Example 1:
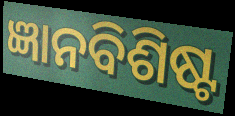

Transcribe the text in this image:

ଜ୍ଞାନବିଶିଷ୍ଟ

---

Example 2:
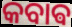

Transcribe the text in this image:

କବାଵ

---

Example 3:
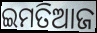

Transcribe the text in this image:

ଇମତିଆଜ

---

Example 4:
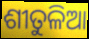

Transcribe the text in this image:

ଶୀତୁଳିଆ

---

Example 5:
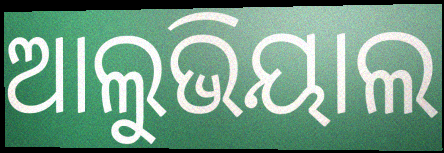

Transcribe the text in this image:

ଆଲୁଭିୟାଲ